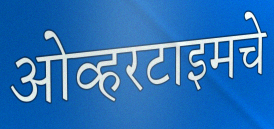
ओव्हरटाइमचे